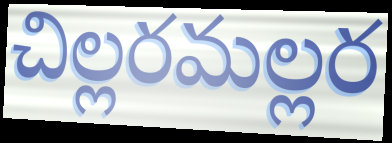
చిల్లరమల్లర